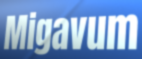
Migavum